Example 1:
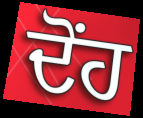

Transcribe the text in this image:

ਦੋਂਹ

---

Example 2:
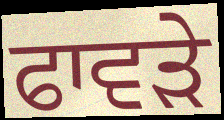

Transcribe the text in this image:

ਫਾਵੜੇ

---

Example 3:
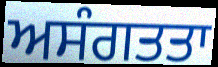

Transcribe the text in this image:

ਅਸੰਗਤਤਾ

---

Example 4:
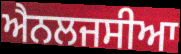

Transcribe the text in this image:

ਐਨਲਜਸੀਆ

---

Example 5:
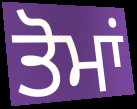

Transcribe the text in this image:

ਤੋਮਾਂ